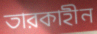
তারকাহীন